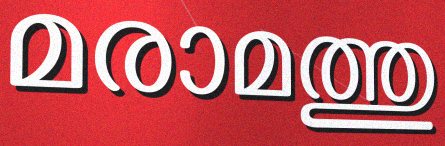
മരാമത്തു